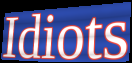
Idiots